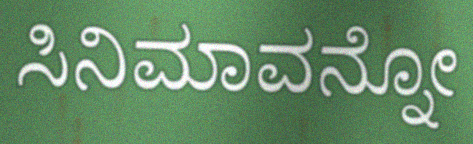
ಸಿನಿಮಾವನ್ನೋ